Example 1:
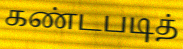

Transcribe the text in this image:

கண்டபடித்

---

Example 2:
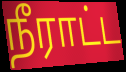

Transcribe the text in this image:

நீராட்ட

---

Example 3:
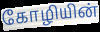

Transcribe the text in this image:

கோழியின்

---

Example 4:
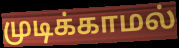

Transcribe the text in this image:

முடிக்காமல்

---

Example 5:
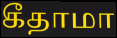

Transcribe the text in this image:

கீதாமா